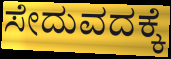
ಸೇದುವದಕ್ಕೆ